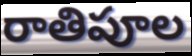
రాతిపూల